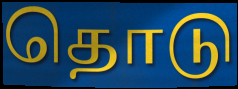
தொடு